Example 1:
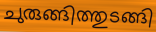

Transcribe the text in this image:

ചുരുങ്ങിത്തുടങ്ങി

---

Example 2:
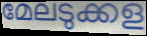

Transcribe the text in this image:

മേലടുക്കള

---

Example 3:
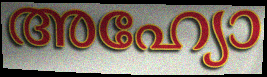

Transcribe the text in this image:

അഹ്യോ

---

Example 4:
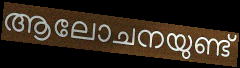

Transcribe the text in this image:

ആലോചനയുണ്ട്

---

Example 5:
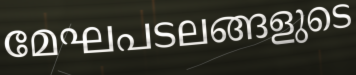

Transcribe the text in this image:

മേഘപടലങ്ങളുടെ